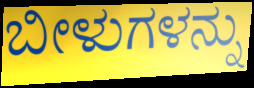
ಬೀಳುಗಳನ್ನು